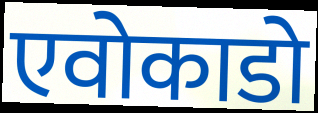
एवोकाडो